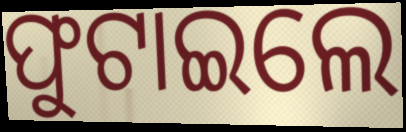
ଫୁଟାଇଲେ